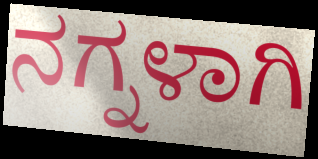
ನಗ್ನಳಾಗಿ